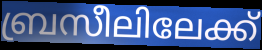
ബ്രസീലിലേക്ക്